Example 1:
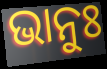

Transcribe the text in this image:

ଭାନୁଃ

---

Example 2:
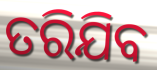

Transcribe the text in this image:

ତରିଯିବ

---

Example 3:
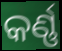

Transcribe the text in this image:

କର୍ଣ୍ଣ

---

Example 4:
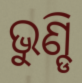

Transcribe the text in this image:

ଭୁଣ୍ଡି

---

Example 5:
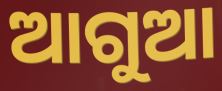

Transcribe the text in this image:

ଆଗୁଆ